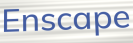
Enscape